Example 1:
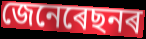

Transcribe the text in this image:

জেনেৰেছনৰ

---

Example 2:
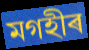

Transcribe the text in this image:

মগহীৰ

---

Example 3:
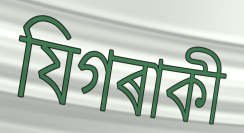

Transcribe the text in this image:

যিগৰাকী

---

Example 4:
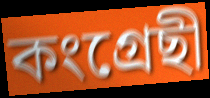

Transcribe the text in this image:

কংগ্ৰেছী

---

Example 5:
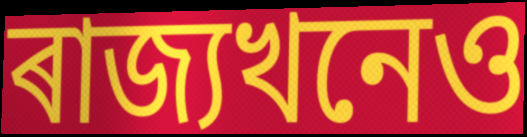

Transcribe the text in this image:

ৰাজ্যখনেও